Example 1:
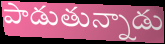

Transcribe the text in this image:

పాడుతున్నాడు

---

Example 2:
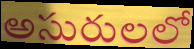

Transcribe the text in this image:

అసురులలో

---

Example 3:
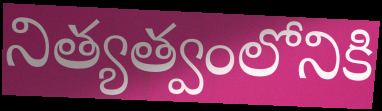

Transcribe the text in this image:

నిత్యత్వంలోనికి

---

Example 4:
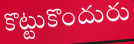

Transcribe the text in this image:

కొట్టుకొందురు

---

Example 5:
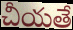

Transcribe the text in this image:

చీయతే